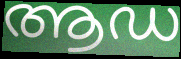
ആഡ